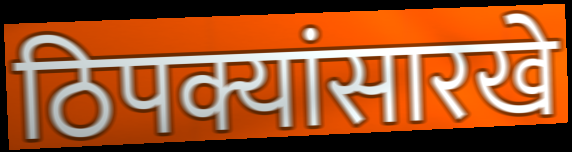
ठिपक्यांसारखे